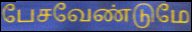
பேசவேண்டுமே